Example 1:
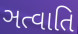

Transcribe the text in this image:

ઞત્વાતિ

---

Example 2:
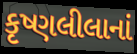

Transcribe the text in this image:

કૃષ્ણલીલાનાં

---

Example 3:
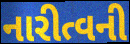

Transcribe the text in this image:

નારીત્વની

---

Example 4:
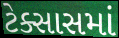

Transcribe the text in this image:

ટેક્સાસમાં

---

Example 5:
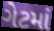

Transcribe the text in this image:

ગેટમાં